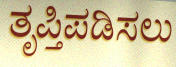
ತೃಪ್ತಿಪಡಿಸಲು